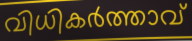
വിധികർത്താവ്